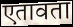
एतावता